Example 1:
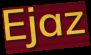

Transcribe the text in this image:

Ejaz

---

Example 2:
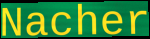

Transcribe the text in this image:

Nacher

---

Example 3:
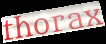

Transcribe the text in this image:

thorax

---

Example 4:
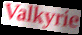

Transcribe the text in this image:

Valkyrie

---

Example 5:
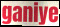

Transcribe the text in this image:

ganiye